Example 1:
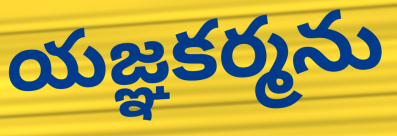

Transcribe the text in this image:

యజ్ఞకర్మను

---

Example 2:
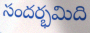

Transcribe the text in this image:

సందర్భమిది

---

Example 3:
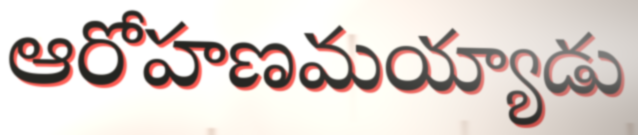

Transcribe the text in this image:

ఆరోహణమయ్యాడు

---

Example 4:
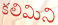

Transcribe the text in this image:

కలిమిని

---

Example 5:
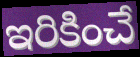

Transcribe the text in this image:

ఇరికించే